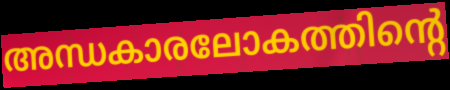
അന്ധകാരലോകത്തിന്റെ